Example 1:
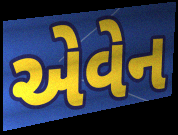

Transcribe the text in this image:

એવેન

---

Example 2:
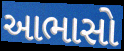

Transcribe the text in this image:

આભાસો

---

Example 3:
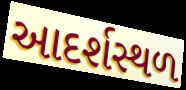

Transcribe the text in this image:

આદર્શસ્થળ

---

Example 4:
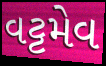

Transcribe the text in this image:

વટ્ટમેવ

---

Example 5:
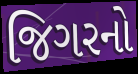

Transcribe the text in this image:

જિગરનો